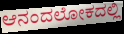
ಆನಂದಲೋಕದಲ್ಲಿ